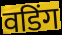
वडिंग